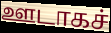
ஊடாகச்